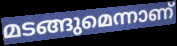
മടങ്ങുമെന്നാണ്